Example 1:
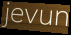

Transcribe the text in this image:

jevun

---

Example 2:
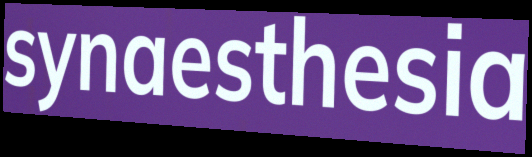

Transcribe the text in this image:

synaesthesia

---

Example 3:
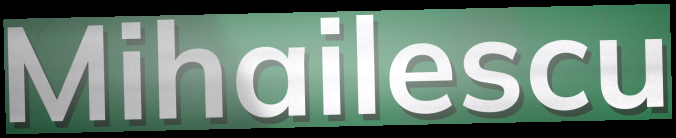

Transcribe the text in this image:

Mihailescu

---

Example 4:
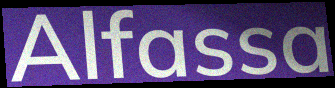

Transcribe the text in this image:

Alfassa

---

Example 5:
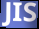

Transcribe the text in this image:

JIS